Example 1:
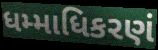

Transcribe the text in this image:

ધમ્માધિકરણં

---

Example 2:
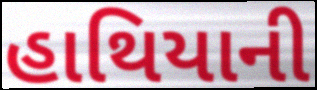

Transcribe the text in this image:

હાથિયાની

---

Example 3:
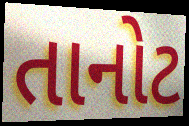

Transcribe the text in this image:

તાનોટ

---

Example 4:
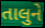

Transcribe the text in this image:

તાલુને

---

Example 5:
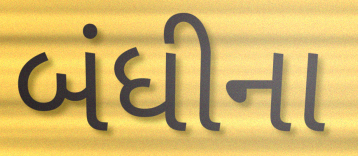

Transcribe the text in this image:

બંધીના